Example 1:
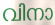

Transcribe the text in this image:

വിനാ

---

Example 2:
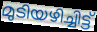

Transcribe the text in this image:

മുടിയഴിച്ചിട്ട്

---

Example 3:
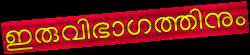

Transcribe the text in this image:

ഇരുവിഭാഗത്തിനും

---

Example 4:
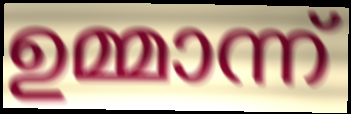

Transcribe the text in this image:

ഉമ്മാന്ന്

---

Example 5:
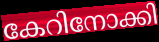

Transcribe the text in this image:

കേറിനോക്കി